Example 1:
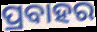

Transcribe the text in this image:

ପ୍ରବାହର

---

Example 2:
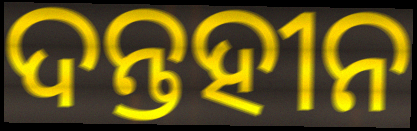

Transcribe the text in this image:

ଦନ୍ତହୀନ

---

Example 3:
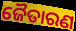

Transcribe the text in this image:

ଜୈତାରଣ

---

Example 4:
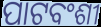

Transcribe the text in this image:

ପାଟବଂଶୀ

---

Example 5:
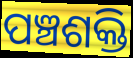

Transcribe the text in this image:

ପଞ୍ଚଶକ୍ତି